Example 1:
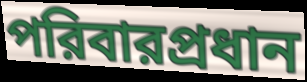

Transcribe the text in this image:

পরিবারপ্রধান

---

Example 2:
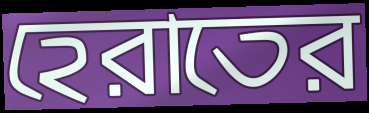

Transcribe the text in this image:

হেরাতের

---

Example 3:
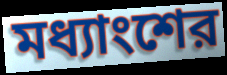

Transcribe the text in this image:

মধ্যাংশের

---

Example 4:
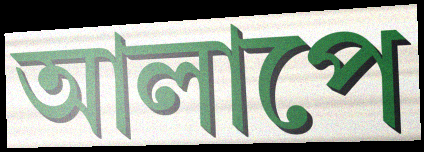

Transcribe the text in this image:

আলাপে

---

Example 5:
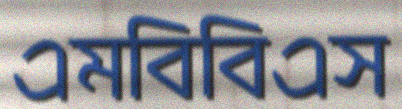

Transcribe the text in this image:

এমবিবিএস